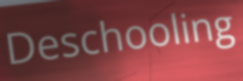
Deschooling